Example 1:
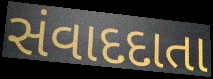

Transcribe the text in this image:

સંવાદદાતા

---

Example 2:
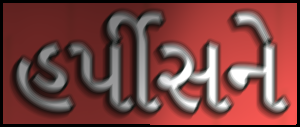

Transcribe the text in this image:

હર્પીસને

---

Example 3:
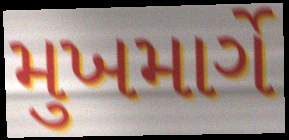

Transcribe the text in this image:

મુખમાર્ગે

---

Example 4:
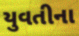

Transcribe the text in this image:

યુવતીના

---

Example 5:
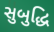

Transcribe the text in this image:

સુબુદ્ધિ